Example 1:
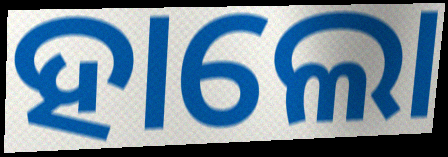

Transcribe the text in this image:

ହାଲୋ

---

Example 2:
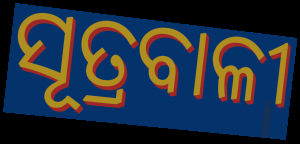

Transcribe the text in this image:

ସୂତ୍ରବାଳୀ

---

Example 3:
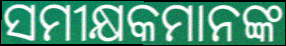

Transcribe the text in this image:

ସମୀକ୍ଷକମାନଙ୍କ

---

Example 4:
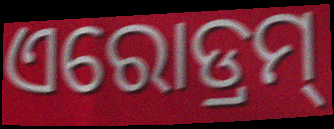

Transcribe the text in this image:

ଏରୋଡ୍ରମ୍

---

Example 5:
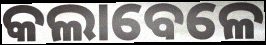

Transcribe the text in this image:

କଲାବେଳେ